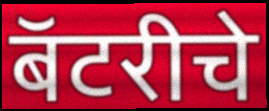
बॅटरीचे